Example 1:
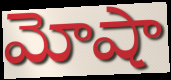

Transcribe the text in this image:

మోషా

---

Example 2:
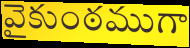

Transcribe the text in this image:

వైకుంఠముగా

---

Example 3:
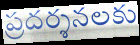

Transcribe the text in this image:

ప్రదర్శనలకు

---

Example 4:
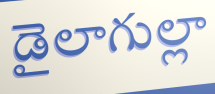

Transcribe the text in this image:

డైలాగుల్లా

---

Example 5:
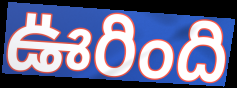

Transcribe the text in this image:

ఊరింది